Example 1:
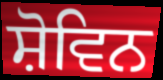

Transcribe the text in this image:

ਸ਼ੋਵਿਨ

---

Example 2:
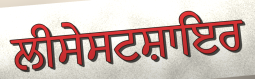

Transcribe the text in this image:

ਲੀਸੇਸਟਸ਼ਾਇਰ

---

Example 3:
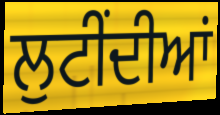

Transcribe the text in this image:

ਲੁਟੀਂਦੀਆਂ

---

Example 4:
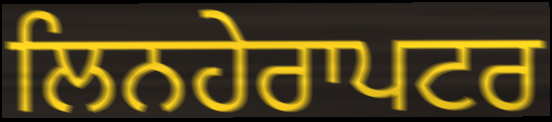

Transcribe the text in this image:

ਲਿਨਹੇਰਾਪਟਰ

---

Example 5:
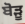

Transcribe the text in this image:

ਬੋੜੂ